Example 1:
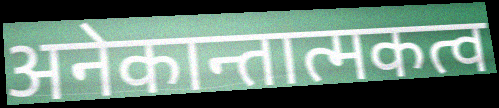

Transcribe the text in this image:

अनेकान्तात्मकत्व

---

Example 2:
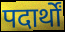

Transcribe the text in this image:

पदार्थों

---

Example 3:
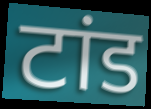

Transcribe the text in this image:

टांड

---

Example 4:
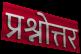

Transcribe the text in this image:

प्रश्नोत्तर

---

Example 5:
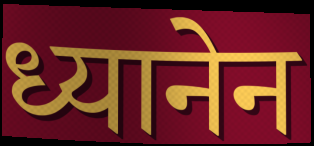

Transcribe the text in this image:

ध्यानेन